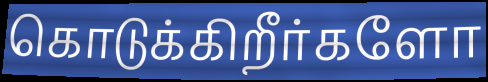
கொடுக்கிறீர்களோ